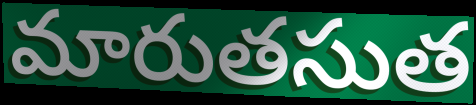
మారుతసుత